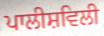
ਪਾਲੀਸ਼ਵਿਲੀ